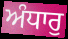
ਅੰਧਾਰੁ